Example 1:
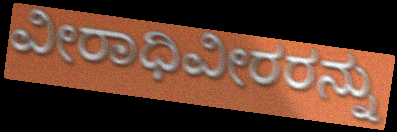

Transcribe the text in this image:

ವೀರಾಧಿವೀರರನ್ನು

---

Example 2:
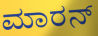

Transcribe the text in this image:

ಮಾರನ್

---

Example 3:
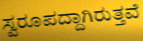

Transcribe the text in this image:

ಸ್ವರೂಪದ್ದಾಗಿರುತ್ತವೆ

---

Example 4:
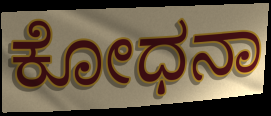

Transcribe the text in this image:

ಕೋಧನಾ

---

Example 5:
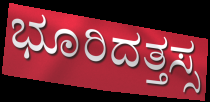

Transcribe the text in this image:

ಭೂರಿದತ್ತಸ್ಸ